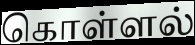
கொள்ளல்